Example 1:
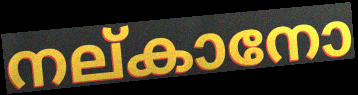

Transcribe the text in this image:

നല്കാനോ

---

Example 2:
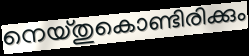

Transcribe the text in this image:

നെയ്തുകൊണ്ടിരിക്കും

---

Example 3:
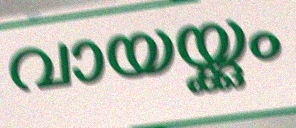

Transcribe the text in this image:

വായയ്ക്കും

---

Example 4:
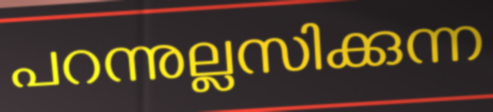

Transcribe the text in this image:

പറന്നുല്ലസിക്കുന്ന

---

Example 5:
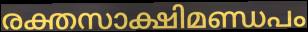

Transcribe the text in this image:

രക്തസാക്ഷിമണ്ഡപം